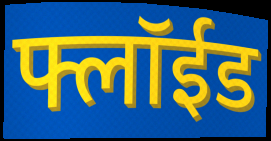
फ्लॉईड